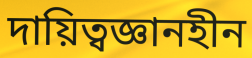
দায়িত্বজ্ঞানহীন